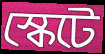
স্কেটে